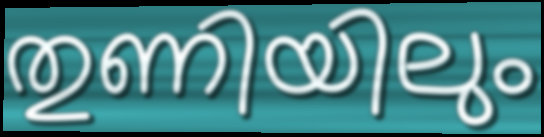
തുണിയിലും